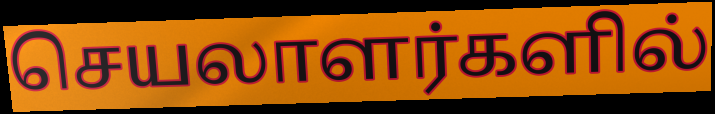
செயலாளர்களில்